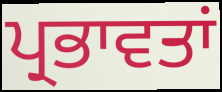
ਪ੍ਰਭਾਵਤਾਂ